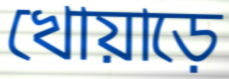
খোয়াড়ে